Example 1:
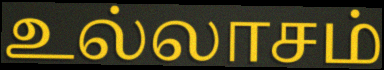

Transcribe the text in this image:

உல்லாசம்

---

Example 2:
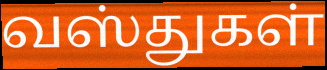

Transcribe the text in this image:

வஸ்துகள்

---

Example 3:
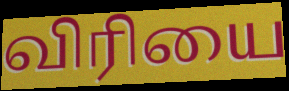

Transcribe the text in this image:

விரியை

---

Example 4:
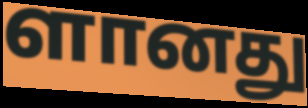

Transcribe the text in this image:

ளானது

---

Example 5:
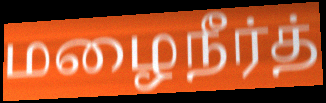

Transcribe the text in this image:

மழைநீர்த்